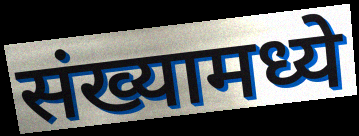
संख्यामध्ये